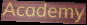
Academy